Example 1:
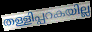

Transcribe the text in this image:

തള്ളിപ്പറകയില്ല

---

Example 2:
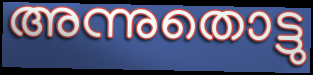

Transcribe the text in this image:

അന്നുതൊട്ടു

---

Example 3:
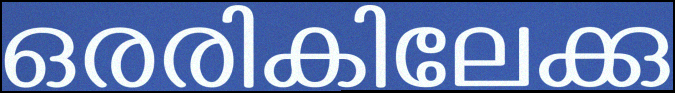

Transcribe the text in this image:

ഒരരികിലേക്കു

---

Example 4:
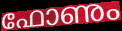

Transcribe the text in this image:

ഫോണും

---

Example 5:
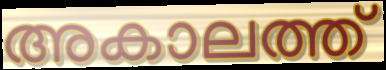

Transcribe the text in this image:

അകാലത്ത്